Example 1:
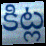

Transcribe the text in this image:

కిట్ల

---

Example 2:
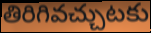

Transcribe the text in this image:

తిరిగివచ్చుటకు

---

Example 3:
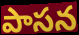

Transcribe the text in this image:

పాసన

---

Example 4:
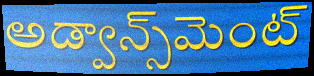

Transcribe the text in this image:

అడ్వాన్స్‌మెంట్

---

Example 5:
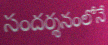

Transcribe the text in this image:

సందర్శనంలోనే